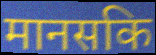
मानसकि